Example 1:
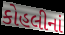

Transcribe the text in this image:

કોહલીનાં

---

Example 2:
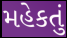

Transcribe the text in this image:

મહેકતું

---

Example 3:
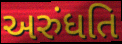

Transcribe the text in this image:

અરુંધતિ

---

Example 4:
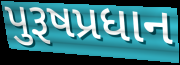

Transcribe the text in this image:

પુરૂષપ્રધાન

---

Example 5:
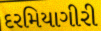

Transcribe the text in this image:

દરમિયાગીરી